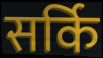
सर्कि